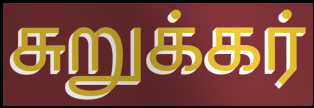
சுறுக்கர்